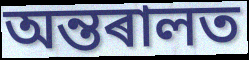
অন্তৰালত